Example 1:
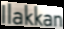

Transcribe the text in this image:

Ilakkan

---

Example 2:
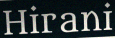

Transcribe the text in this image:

Hirani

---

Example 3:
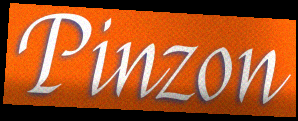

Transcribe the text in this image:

Pinzon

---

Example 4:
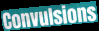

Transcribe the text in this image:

Convulsions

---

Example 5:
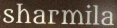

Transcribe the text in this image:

sharmila